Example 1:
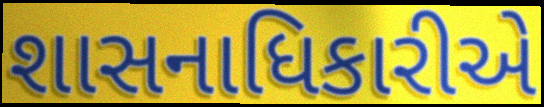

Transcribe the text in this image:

શાસનાધિકારીએ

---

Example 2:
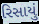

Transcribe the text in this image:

રિસાયું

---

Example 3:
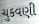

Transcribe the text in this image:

ચુકવણી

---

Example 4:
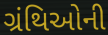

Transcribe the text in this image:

ગ્રંથિઓની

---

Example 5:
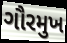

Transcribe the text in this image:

ગૌરમુખ